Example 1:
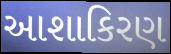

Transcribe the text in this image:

આશાકિરણ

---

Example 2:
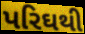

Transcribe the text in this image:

પરિઘથી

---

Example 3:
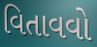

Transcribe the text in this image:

વિતાવવો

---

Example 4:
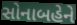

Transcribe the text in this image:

સોનાબહેને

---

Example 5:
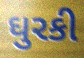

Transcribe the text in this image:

ઘુરકી